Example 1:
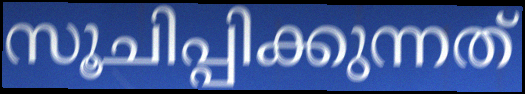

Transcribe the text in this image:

സൂചിപ്പിക്കുന്നത്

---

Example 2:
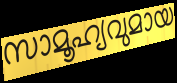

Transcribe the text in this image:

സാമൂഹ്യവുമായ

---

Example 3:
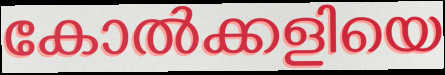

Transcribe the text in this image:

കോൽക്കളിയെ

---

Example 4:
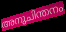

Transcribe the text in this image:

അനുചിന്തനം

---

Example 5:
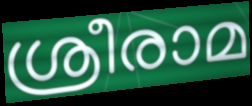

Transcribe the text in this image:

ശ്രീരാമ